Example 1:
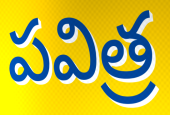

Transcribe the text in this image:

పవిత్ర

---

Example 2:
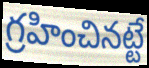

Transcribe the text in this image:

గ్రహించినట్టే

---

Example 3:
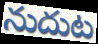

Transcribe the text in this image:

నుదుట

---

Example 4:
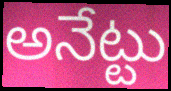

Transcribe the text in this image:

అనేట్టు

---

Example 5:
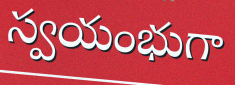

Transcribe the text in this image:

స్వయంభుగా